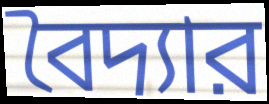
বৈদ্যার